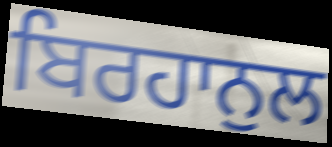
ਬਿਰਹਾਨੁਲ